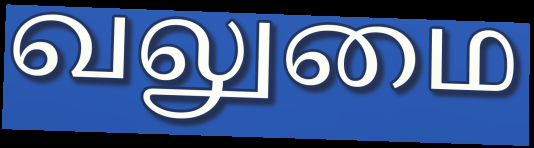
வலுமை